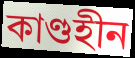
কাণ্ডহীন